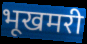
भूखमरी